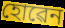
হোৱেন